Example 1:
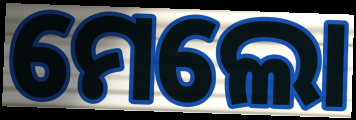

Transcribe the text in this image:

ମେଲୋ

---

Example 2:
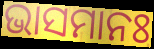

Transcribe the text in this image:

ଭାସମାନଃ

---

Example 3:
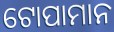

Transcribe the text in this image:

ଟୋପାମାନ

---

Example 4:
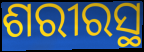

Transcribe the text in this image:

ଶରୀରସ୍ଥ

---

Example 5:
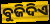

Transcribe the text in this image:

ବୁଜିଦିଏ